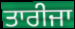
ਤਾਰੀਜਾ